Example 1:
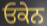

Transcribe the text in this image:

ਓਕੇਨ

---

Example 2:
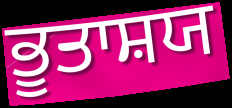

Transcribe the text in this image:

ਭੂਤਾਸ਼ਯ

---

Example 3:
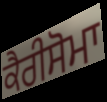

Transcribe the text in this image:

ਕੈਰੀਸੋਮਾ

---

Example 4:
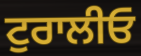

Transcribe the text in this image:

ਟੁਰਾਲੀਓ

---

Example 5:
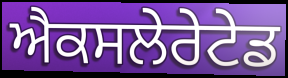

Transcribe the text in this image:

ਐਕਸਲੇਰੇਟੇਡ